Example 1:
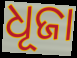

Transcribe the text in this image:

ଧୂଜା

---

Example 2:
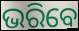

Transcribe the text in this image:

ଭରିବେ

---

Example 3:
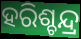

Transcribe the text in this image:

ହରିଶ୍ଚନ୍ଦ୍ର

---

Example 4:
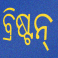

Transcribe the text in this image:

ବ୍ରିଷ୍ଟନ୍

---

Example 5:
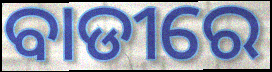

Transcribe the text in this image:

ବାଡୀରେ